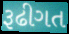
રૂઢીગત